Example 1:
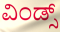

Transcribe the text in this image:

ವಿಂಡ್ಸ್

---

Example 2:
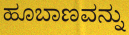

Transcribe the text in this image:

ಹೂಬಾಣವನ್ನು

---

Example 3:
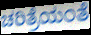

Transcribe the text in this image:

ಚರಿತ್ರೆಯಂತೆ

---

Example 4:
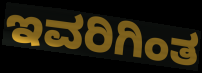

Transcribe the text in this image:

ಇವರಿಗಿಂತ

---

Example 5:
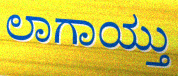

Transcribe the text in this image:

ಲಾಗಾಯ್ತು